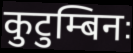
कुटुम्बिनः